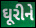
ઘૂરીને